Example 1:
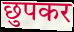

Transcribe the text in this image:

छुपकर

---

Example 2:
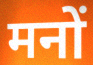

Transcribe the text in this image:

मनों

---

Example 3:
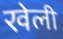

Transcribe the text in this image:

खेली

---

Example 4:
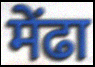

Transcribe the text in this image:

मेंढा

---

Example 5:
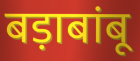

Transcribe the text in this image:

बड़ाबांबू